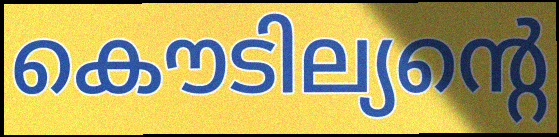
കൌടില്യന്റെ